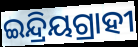
ଇନ୍ଦ୍ରିୟଗ୍ରାହୀ